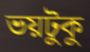
ভয়টুকু